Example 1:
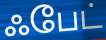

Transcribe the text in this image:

ஃபேட்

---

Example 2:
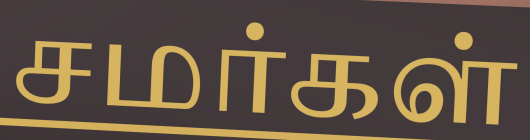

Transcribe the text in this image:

சமர்கள்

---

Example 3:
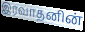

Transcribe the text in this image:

இரவாதனின்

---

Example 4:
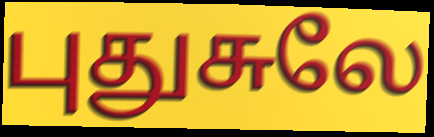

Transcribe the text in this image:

புதுசுலே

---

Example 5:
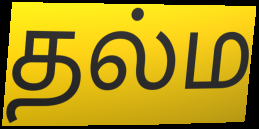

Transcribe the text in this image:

தல்ம